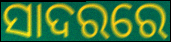
ସାଦରରେ